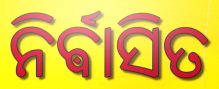
ନିର୍ଵାସିତ